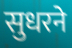
सुधरने